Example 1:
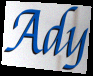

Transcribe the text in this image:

Ady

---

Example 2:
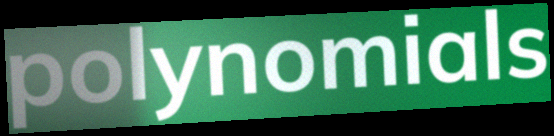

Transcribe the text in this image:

polynomials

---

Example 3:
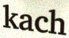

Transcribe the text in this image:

kach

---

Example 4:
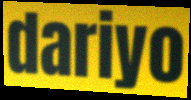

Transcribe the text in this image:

dariyo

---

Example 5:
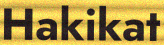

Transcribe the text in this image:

Hakikat